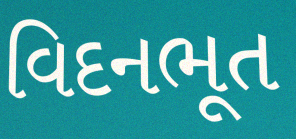
વિદનભૂત